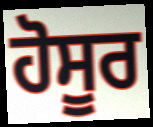
ਹੋਸੂਰ